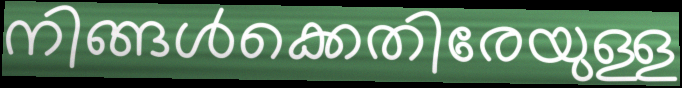
നിങ്ങൾക്കെതിരേയുള്ള